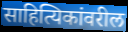
साहित्यिकांवरील